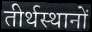
तीर्थस्थानों